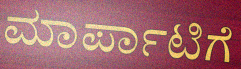
ಮಾರ್ಪಾಟಿಗೆ